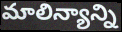
మాలిన్యాన్ని